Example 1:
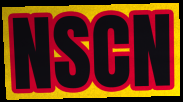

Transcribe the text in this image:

NSCN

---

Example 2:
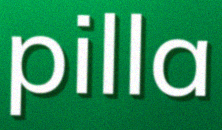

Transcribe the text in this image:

pilla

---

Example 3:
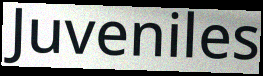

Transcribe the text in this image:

Juveniles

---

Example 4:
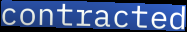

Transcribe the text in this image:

contracted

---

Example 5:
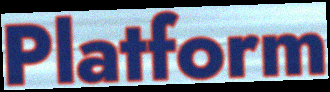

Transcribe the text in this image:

Platform